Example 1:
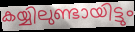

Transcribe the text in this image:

കയ്യിലുണ്ടായിട്ടും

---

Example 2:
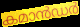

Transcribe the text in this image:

കമാൻഡർ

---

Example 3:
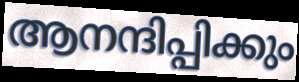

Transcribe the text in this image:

ആനന്ദിപ്പിക്കും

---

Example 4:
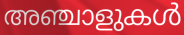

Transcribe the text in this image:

അഞ്ചാളുകൾ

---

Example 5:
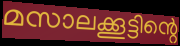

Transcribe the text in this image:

മസാലക്കൂട്ടിന്റെ